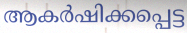
ആകർഷിക്കപ്പെട്ട